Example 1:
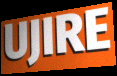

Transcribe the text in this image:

UJIRE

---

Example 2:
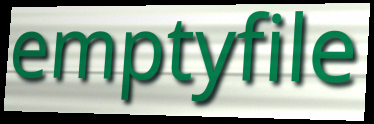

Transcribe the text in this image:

emptyfile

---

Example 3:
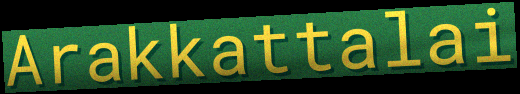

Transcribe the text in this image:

Arakkattalai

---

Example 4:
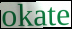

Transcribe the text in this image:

okate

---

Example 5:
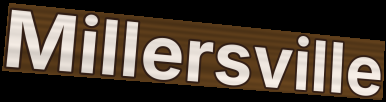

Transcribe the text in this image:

Millersville